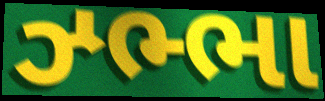
ઝ્ભ્ભા